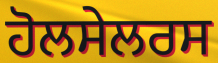
ਹੋਲਸੇਲਰਸ